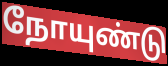
நோயுண்டு